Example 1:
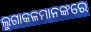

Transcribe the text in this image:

ଲୁଗାକଳମାନଙ୍କରେ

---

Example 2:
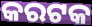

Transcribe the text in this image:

କରଟକ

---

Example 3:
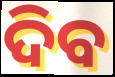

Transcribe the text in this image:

ଦିବ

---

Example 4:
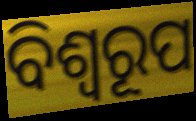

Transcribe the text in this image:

ବିଶ୍ବରୂପ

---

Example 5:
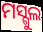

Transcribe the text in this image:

ମସ୍ଗୁଲ